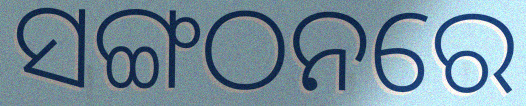
ସଙ୍ଗଠନରେ